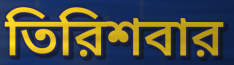
তিরিশবার